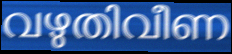
വഴുതിവീണ